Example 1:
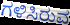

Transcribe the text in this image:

ಗಳಿಸಿರುವ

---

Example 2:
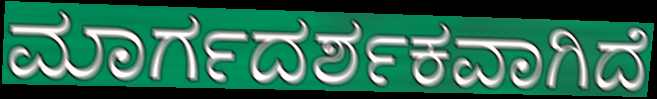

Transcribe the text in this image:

ಮಾರ್ಗದರ್ಶಕವಾಗಿದೆ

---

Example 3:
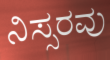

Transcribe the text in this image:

ನಿಸ್ಸರವು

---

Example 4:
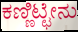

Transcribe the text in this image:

ಕಣ್ಣಿಟ್ಟೇನು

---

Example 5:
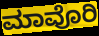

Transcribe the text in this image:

ಮಾವೊರಿ